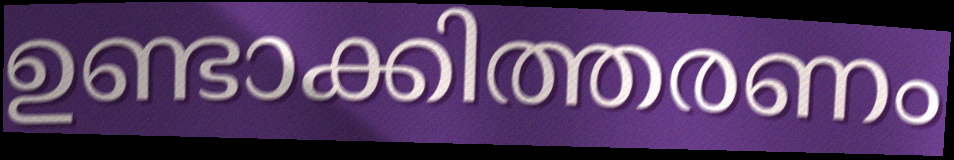
ഉണ്ടാക്കിത്തരണം